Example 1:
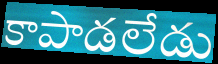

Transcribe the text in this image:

కాపాడలేడు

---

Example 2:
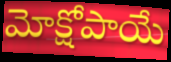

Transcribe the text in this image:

మోక్షోపాయే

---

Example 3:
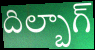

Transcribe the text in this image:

దిల్బాగ్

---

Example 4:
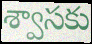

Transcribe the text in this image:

శ్వాసకు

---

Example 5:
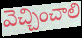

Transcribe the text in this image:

వెచ్చించాలి